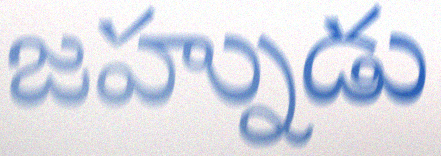
జహ్నుడు